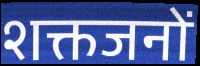
शक्तजनों